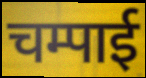
चम्‍पाई